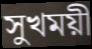
সুখময়ী